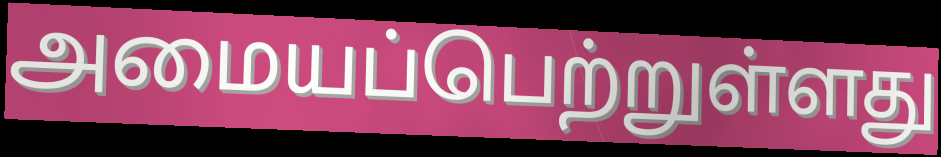
அமையப்பெற்றுள்ளது